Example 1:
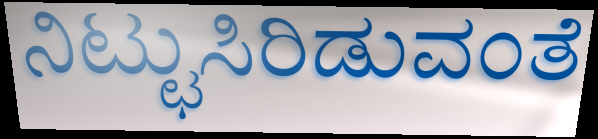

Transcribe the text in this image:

ನಿಟ್ಟುಸಿರಿಡುವಂತೆ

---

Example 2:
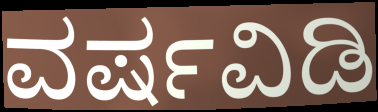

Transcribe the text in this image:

ವರ್ಷವಿಡಿ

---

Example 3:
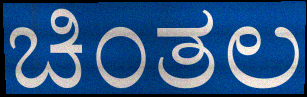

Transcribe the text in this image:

ಚಿಂತಲ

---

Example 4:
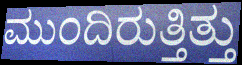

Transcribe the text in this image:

ಮುಂದಿರುತ್ತಿತ್ತು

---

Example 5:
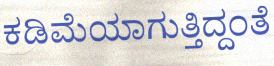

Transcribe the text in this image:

ಕಡಿಮೆಯಾಗುತ್ತಿದ್ದಂತೆ